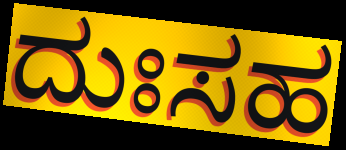
ದುಃಸಹ